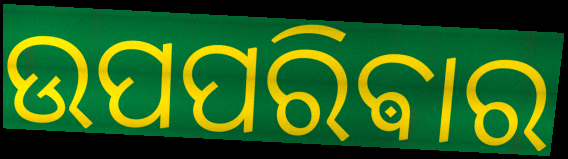
ଉପପରିଵାର